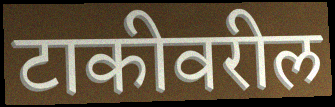
टाकीवरील